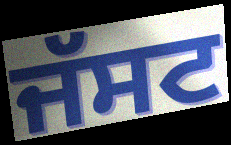
ਜੱਸਟ